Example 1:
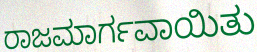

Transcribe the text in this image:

ರಾಜಮಾರ್ಗವಾಯಿತು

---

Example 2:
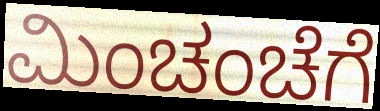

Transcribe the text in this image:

ಮಿಂಚಂಚೆಗೆ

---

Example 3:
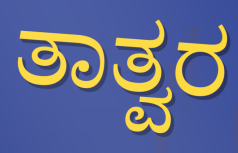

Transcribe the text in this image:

ತಾತ್ವರ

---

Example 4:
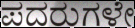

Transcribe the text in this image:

ಪದರುಗಳೇ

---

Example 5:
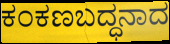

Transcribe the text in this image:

ಕಂಕಣಬದ್ಧನಾದ